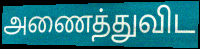
அணைத்துவிட